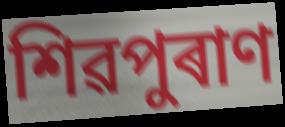
শিৱপুৰাণ